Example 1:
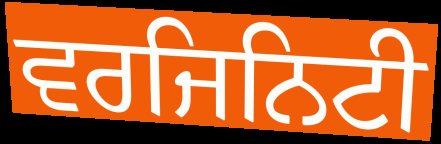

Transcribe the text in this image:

ਵਰਜਿਨਿਟੀ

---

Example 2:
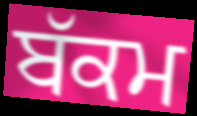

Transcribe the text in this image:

ਬੱਕਮ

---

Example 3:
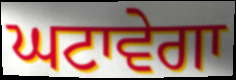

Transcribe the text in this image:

ਘਟਾਵੇਗਾ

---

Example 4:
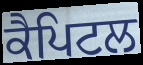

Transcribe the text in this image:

ਕੈਪਿਟਲ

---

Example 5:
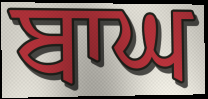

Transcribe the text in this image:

ਬਾਘ